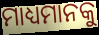
ମାଧ୍ୟମାନକୁ